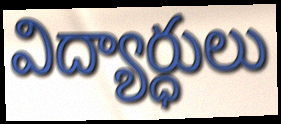
విద్యార్ధులు